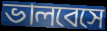
ভালবেসে